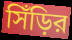
সিঁড়ির